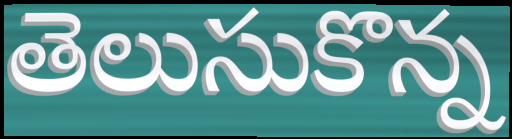
తెలుసుకొన్న